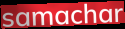
samachar